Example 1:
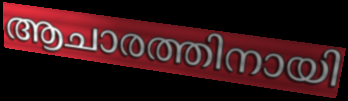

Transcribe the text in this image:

ആചാരത്തിനായി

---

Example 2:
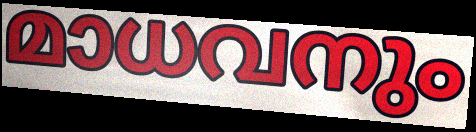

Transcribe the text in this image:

മാധവനും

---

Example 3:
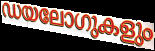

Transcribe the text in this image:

ഡയലോഗുകളും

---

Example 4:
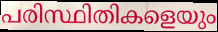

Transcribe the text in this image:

പരിസ്ഥിതികളെയും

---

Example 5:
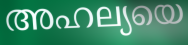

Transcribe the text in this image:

അഹല്യയെ